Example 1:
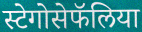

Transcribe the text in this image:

स्टेगोसेफॅलिया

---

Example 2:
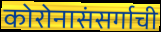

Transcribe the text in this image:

कोरोनासंसर्गाची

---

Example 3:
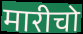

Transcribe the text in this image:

मारीचो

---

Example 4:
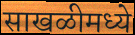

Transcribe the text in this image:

साखळीमध्ये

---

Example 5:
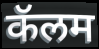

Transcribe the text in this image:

कॅलम